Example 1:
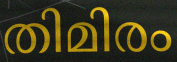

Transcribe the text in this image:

തിമിരം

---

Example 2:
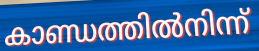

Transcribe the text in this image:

കാണ്ഡത്തിൽനിന്ന്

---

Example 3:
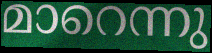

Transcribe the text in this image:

മാറെന്നു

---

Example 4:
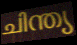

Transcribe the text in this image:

ചിന്ത്യ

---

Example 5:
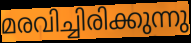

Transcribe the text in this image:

മരവിച്ചിരിക്കുന്നു